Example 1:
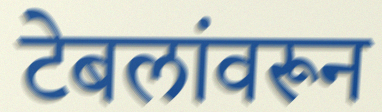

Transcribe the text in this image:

टेबलांवरून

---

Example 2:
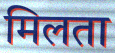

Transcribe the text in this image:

मिलता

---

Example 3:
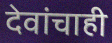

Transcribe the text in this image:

देवांचाही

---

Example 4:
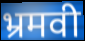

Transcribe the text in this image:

भ्रमवी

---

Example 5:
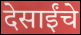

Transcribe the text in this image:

देसाईंचे